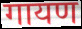
गायण